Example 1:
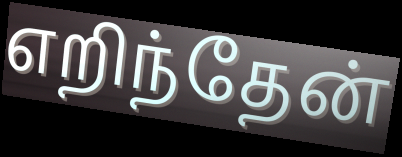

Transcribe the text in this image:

எறிந்தேன்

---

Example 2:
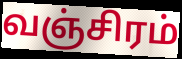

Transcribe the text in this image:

வஞ்சிரம்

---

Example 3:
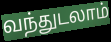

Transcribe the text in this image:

வந்துடலாம்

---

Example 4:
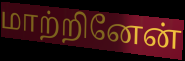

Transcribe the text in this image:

மாற்றினேன்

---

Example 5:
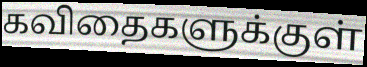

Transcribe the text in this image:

கவிதைகளுக்குள்